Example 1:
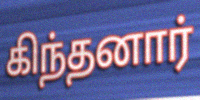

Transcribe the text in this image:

கிந்தனார்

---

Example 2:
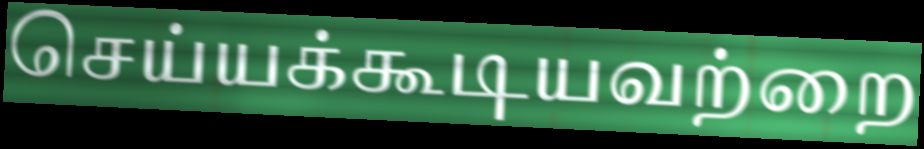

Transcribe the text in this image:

செய்யக்கூடியவற்றை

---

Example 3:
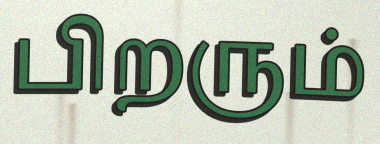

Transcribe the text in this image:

பிறரும்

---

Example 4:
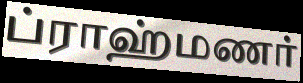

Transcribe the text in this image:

ப்ராஹ்மணர்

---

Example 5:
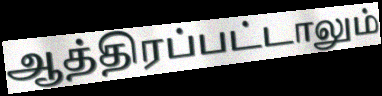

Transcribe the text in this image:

ஆத்திரப்பட்டாலும்